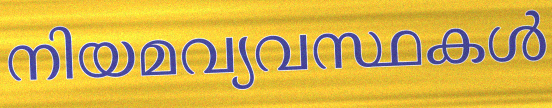
നിയമവ്യവസ്ഥകൾ